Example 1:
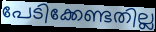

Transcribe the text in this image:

പേടിക്കേണ്ടതില്ല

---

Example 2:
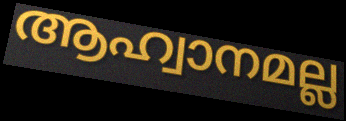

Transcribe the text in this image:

ആഹ്വാനമല്ല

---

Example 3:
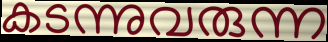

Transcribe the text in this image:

കടന്നുവരുന്ന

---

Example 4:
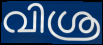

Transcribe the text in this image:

വിശ്ര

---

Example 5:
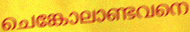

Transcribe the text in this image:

ചെങ്കോലാണ്ടവനെ